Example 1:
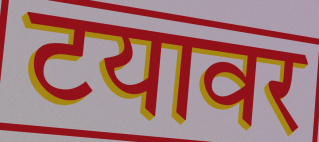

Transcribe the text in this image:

टयावर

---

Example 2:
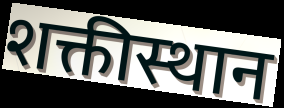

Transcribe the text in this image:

शक्तीस्थान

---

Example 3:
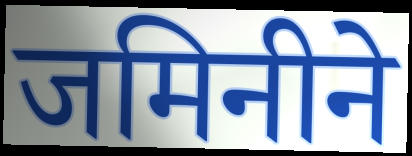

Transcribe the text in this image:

जमिनीने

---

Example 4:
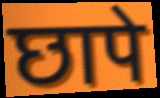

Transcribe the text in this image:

छापे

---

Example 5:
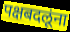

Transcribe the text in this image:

पक्षबदलूंना